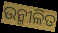
ଉନ୍ମୀଳିତ